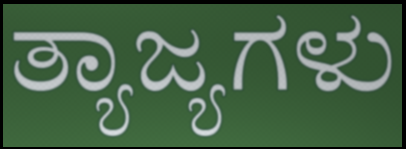
ತ್ಯಾಜ್ಯಗಳು